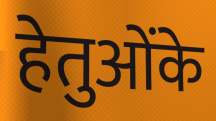
हेतुओंके